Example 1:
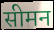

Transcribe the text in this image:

सीमन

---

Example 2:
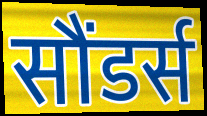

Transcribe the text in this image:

सौंडर्स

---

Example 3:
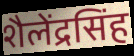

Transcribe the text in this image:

शैलेंद्रसिंह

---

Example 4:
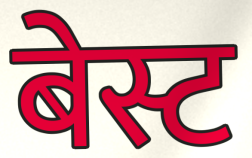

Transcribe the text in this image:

बेस्ट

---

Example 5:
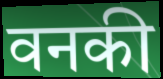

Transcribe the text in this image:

वनकी